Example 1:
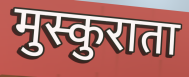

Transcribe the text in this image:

मुस्कुराता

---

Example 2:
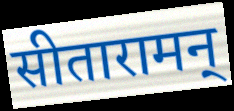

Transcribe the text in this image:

सीतारामन्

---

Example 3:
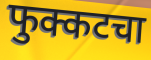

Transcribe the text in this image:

फुक्कटचा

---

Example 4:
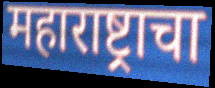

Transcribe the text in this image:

महाराष्ट्राचा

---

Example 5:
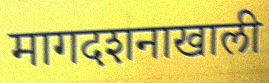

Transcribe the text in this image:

मागदशनाखाली